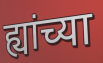
ह्यांच्या